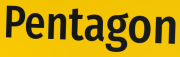
Pentagon